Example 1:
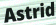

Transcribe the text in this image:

Astrid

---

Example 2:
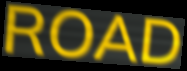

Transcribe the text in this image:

ROAD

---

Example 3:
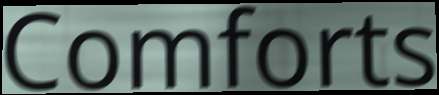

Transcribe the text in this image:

Comforts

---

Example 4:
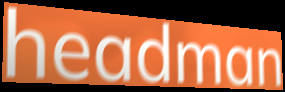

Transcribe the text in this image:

headman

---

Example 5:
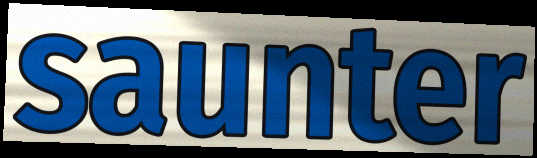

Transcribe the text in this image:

saunter